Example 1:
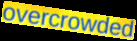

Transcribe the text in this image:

overcrowded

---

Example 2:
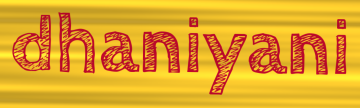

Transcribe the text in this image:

dhaniyani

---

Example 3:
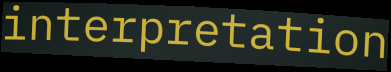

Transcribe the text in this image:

interpretation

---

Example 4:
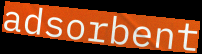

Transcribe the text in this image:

adsorbent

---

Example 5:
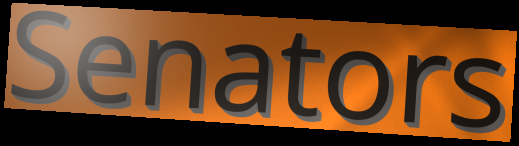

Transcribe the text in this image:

Senators